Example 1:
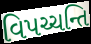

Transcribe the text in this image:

વિપચ્ચન્તિ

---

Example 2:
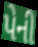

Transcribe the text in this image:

પેની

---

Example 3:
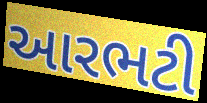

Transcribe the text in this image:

આરભટી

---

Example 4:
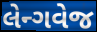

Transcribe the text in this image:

લેન્ગવેજ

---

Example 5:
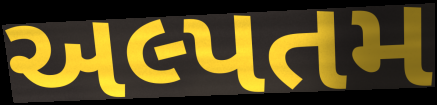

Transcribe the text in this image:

અલ્પતમ